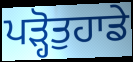
ਪੜ੍ਹੋਤੁਹਾਡੇ